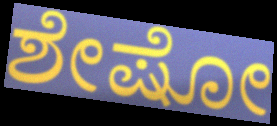
ಶೇಷೋ